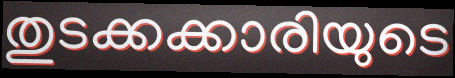
തുടക്കക്കാരിയുടെ